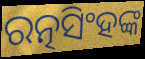
ରତ୍ନସିଂହଙ୍କ